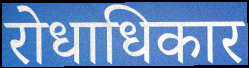
रोधाधिकार